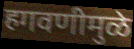
हगवणीमुळे